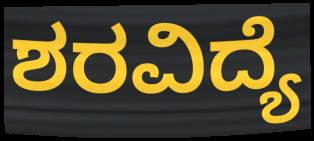
ಶರವಿದ್ಯೆ